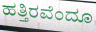
ಹತ್ತಿರವೆಂದೂ